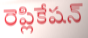
రెప్లికేషన్